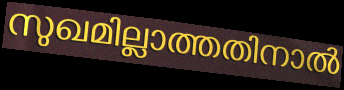
സുഖമില്ലാത്തതിനാൽ